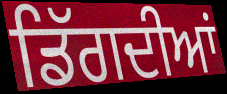
ਡਿੱਗਦੀਆਂ